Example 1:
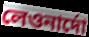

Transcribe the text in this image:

লেওনার্দো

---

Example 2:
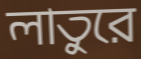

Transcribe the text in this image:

লাতুরে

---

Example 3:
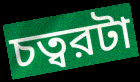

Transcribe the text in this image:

চত্বরটা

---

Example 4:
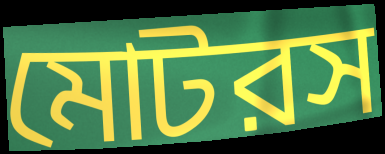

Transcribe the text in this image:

মোটরস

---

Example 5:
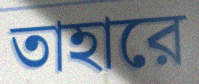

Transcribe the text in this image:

তাহারে